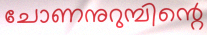
ചോണനുറുമ്പിന്റെ